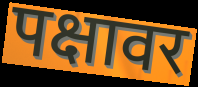
पक्षावर